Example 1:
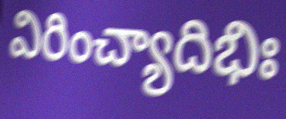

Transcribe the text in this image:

విరించ్యాదిభిః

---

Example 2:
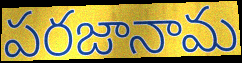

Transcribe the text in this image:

పరజానామ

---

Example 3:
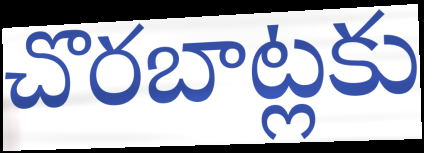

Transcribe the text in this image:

చొరబాట్లకు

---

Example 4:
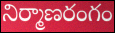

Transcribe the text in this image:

నిర్మాణరంగం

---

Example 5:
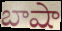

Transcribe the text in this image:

బాషా